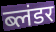
ब्लंडर